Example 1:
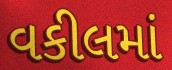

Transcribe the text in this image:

વકીલમાં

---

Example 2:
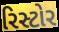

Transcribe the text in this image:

રિસ્ટોર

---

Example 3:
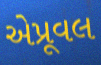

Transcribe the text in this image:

એપ્રૂવલ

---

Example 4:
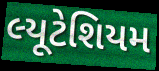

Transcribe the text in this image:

લ્યૂટેશિયમ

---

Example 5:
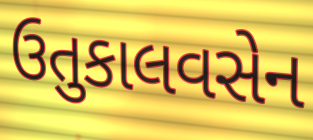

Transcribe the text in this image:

ઉતુકાલવસેન